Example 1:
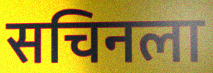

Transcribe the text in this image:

सचिनला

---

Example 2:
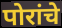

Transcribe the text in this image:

पोरांचे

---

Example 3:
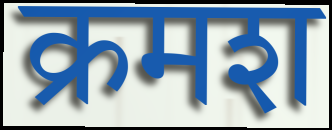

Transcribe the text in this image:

क्रमश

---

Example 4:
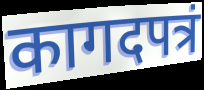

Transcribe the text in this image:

कागदपत्रं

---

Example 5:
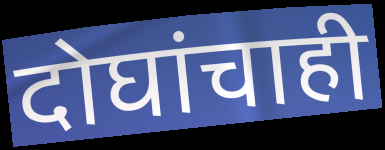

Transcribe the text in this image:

दोघांचाही